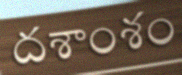
దశాంశం